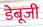
डेबूजी